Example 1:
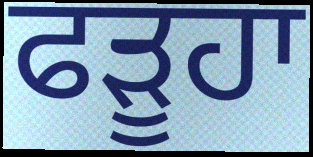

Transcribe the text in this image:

ਫੜੂਹਾ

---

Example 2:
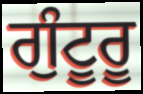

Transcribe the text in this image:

ਗੁੰਟੂਰੂ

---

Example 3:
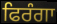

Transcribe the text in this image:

ਫਿਰੰਗਾ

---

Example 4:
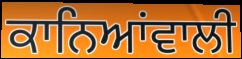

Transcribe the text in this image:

ਕਾਨਿਆਂਵਾਲੀ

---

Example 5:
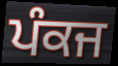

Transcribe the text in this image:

ਪੰਕਜ